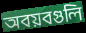
অবয়বগুলি